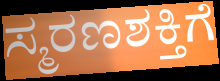
ಸ್ಮರಣಶಕ್ತಿಗೆ